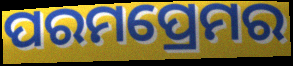
ପରମପ୍ରେମର